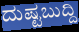
ದುಷ್ಟಬುದ್ದಿ